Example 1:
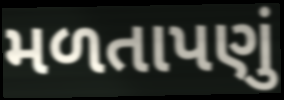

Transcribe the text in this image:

મળતાપણું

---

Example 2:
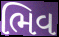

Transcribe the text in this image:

ભિવ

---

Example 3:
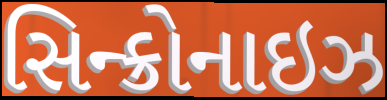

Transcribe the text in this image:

સિન્ક્રોનાઇઝ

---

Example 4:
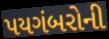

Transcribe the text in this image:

પયગંબરોની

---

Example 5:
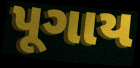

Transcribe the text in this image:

પૂગાય